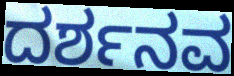
ದರ್ಶನವ